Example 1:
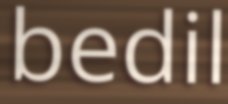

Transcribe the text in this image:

bedil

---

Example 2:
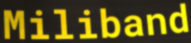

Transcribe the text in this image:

Miliband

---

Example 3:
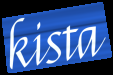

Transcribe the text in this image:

kista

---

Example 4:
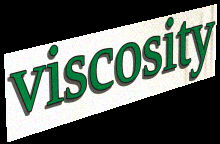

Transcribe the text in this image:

viscosity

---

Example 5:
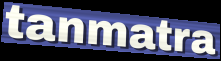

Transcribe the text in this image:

tanmatra